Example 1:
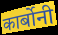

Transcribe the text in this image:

कार्बोनी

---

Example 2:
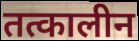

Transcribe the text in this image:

तत्कालीन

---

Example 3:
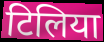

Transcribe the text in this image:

टिलिया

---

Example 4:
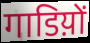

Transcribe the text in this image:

गाडिय़ों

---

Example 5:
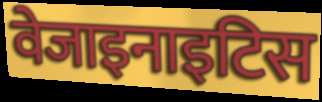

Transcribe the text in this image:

वेजाइनाइटिस